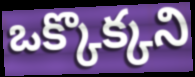
ఒక్కొక్కని